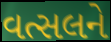
વત્સલને